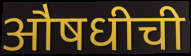
औषधीची